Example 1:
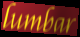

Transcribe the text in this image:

lumbar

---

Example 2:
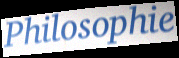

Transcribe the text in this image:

Philosophie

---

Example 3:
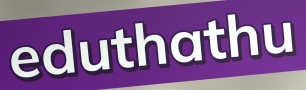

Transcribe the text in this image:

eduthathu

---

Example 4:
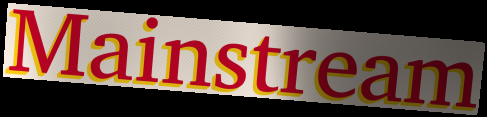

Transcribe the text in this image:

Mainstream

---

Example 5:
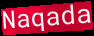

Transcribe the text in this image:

Naqada